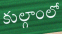
కుల్గాంలో